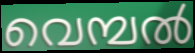
വെമ്പൽ